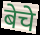
बेचे